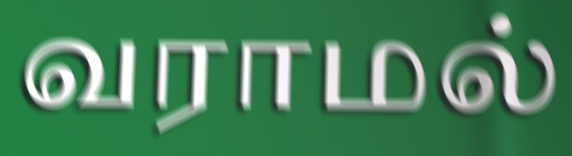
வராமல்